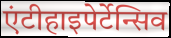
एंटीहाइपेर्टेन्सिव